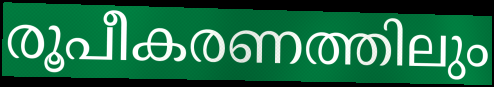
രൂപീകരണത്തിലും